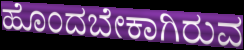
ಹೊಂದಬೇಕಾಗಿರುವ